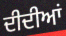
ਦੀਦੀਆਂ